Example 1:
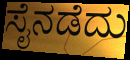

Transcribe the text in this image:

ಸೈನಡೆದು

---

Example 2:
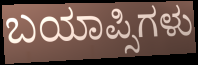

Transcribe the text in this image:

ಬಯಾಪ್ಸಿಗಳು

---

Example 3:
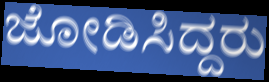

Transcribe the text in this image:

ಜೋಡಿಸಿದ್ದರು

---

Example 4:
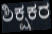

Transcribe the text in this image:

ಶಿಕ್ಷಕರ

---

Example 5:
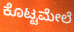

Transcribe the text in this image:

ಕೊಟ್ಟಮೇಲೆ